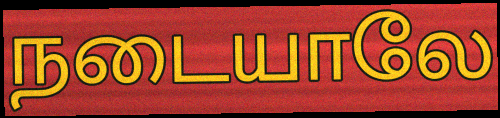
நடையாலே